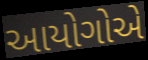
આયોગોએ